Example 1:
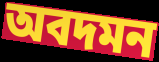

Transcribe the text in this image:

অবদমন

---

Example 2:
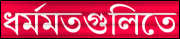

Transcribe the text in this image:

ধর্মমতগুলিতে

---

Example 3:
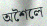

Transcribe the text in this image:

অশৈলে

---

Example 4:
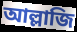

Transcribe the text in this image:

আল্লাজি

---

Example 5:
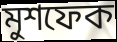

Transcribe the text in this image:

মুশফেক